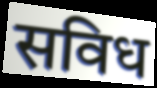
सविध